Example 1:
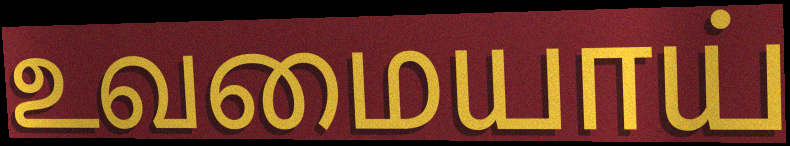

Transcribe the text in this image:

உவமையாய்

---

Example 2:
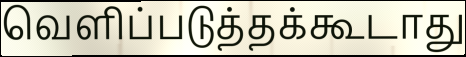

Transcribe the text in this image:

வெளிப்படுத்தக்கூடாது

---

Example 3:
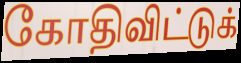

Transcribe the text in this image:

கோதிவிட்டுக்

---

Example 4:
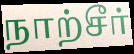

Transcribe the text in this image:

நாற்சீர்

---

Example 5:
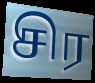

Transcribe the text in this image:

சிர